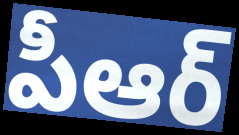
పీఆర్